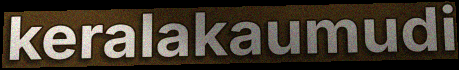
keralakaumudi